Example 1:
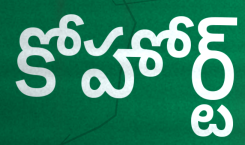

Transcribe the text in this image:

కోహోర్ట్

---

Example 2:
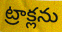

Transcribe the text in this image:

ట్రాక్లను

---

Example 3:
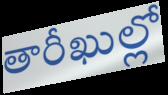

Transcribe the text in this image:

తారీఖుల్లో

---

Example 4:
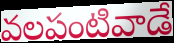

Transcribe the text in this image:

వలపంటివాడే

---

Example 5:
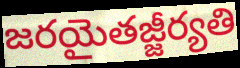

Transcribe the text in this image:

జరయైతజ్జీర్యతి